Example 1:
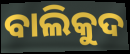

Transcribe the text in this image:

ବାଲିକୁଦ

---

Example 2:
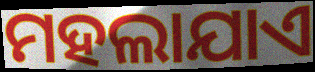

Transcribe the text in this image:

ମହଲାଯାଏ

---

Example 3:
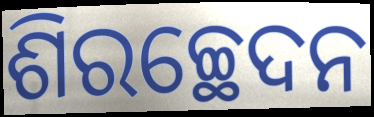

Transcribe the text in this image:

ଶିରଚ୍ଛେଦନ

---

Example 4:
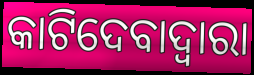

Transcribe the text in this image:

କାଟିଦେବାଦ୍ଵାରା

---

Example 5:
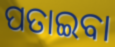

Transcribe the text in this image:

ପତାଇବା